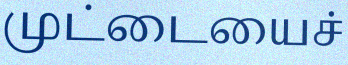
முட்டையைச்